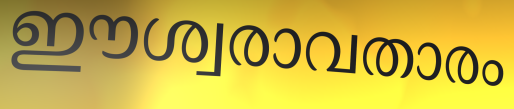
ഈശ്വരാവതാരം